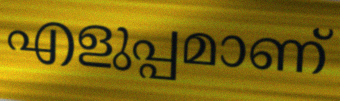
എളുപ്പമാണ്